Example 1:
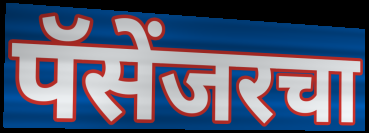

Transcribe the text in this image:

पॅसेंजरचा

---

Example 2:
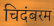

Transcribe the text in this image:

चिदंबरम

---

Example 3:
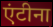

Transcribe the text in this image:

एंटीना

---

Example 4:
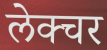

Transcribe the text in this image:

लेक्चर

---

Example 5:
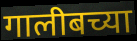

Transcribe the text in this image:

गालीबच्या